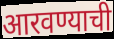
आरवण्याची